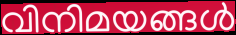
വിനിമയങ്ങൾ